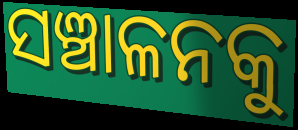
ସଞ୍ଚାଳନକୁ